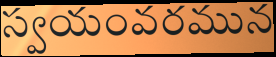
స్వయంవరమున